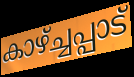
കാഴ്ച്ചപ്പാട്